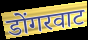
डोंगरवाट